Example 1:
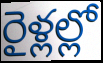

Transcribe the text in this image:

రైళ్లల్లో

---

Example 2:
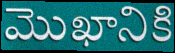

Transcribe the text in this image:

మొఖానికి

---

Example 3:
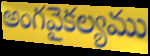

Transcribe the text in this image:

అంగవైకల్యము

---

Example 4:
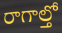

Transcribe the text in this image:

రాగాల్తో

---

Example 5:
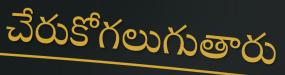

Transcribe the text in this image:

చేరుకోగలుగుతారు